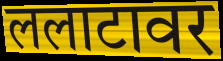
ललाटावर